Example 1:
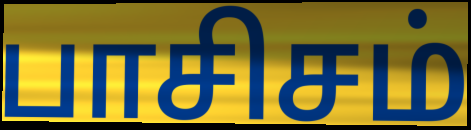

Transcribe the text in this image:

பாசிசம்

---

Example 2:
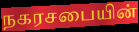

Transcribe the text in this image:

நகரசபையின்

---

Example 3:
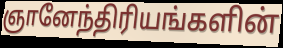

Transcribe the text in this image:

ஞானேந்திரியங்களின்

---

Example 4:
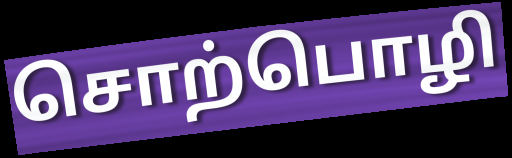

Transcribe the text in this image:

சொற்பொழி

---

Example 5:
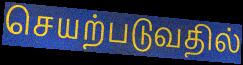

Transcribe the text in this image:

செயற்படுவதில்